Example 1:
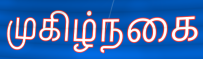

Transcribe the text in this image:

முகிழ்நகை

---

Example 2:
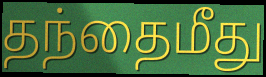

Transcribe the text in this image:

தந்தைமீது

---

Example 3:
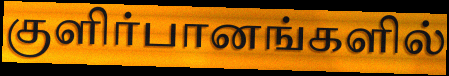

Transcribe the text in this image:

குளிர்பானங்களில்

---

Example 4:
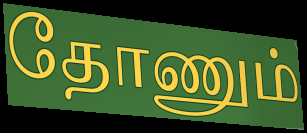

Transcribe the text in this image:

தோணும்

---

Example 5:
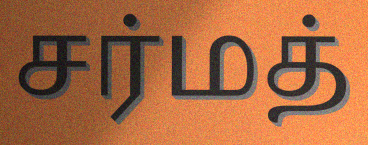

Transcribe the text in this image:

சர்மத்